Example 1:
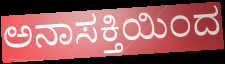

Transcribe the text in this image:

ಅನಾಸಕ್ತಿಯಿಂದ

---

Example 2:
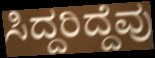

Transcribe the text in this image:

ಸಿದ್ದರಿದ್ದೆವು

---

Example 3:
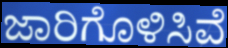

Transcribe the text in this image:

ಜಾರಿಗೊಳಿಸಿವೆ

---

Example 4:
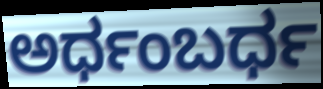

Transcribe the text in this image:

ಅರ್ಧಂಬರ್ಧ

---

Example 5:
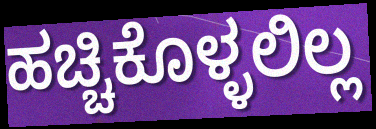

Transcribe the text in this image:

ಹಚ್ಚಿಕೊಳ್ಳಲಿಲ್ಲ